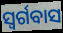
ସ୍ଵର୍ଗବାସ